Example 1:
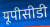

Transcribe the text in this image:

यूपीसीडी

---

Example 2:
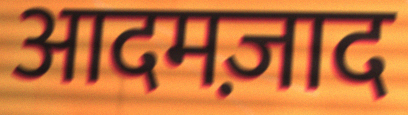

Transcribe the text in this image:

आदमज़ाद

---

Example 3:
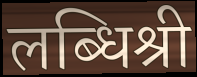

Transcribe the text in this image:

लब्धिश्री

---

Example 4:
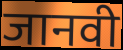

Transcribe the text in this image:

जानवी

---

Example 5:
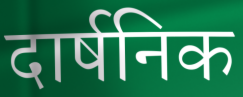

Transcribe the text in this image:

दार्षनिक